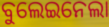
ବୁଲେଇନେଲା